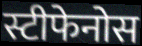
स्टीफेनोस